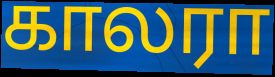
காலரா